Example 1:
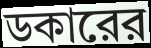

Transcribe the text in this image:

ডকারের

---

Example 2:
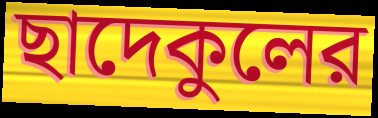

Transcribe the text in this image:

ছাদেকুলের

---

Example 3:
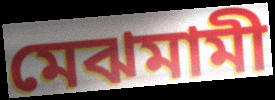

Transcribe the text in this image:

মেঝমামী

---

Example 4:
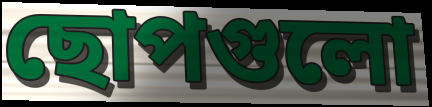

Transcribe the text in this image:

ছোপগুলো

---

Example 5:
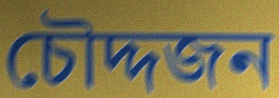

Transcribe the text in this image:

চৌদ্দজন